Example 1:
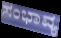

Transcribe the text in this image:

ಸಂಭಾವ್ಯ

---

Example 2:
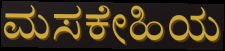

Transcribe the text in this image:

ಮಸಕೇಹಿಯ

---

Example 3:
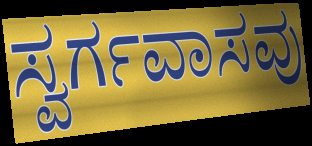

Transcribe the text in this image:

ಸ್ವರ್ಗವಾಸವು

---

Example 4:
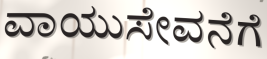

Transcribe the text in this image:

ವಾಯುಸೇವನೆಗೆ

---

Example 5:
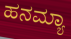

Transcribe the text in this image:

ಹನಮ್ಯಾ